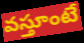
వస్తూంటే